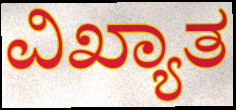
ವಿಖ್ಯಾತ